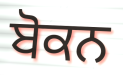
ਬੋਕਨ